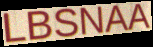
LBSNAA